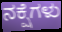
ನಕ್ಷೆಗಳು